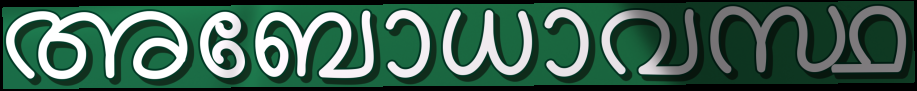
അബോധാവസ്ഥ